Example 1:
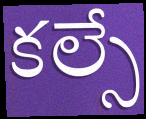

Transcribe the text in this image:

కల్సే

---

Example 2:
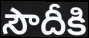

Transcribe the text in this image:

సౌదీకి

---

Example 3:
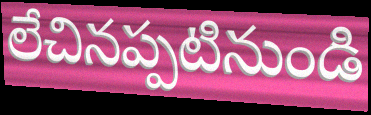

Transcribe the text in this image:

లేచినప్పటినుండి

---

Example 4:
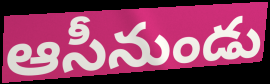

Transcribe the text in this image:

ఆసీనుండు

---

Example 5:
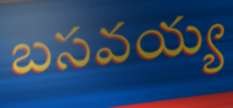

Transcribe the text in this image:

బసవయ్య